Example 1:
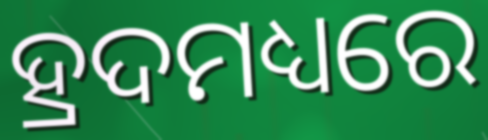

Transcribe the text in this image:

ହ୍ରଦମଧ୍ୟରେ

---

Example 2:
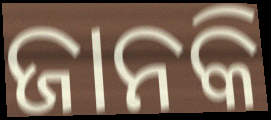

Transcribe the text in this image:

ଜାନକି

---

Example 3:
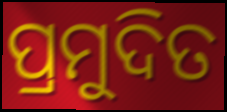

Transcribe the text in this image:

ପ୍ରମୁଦିତ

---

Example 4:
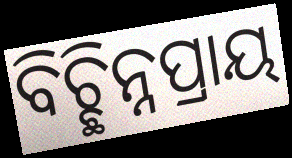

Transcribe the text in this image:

ବିଚ୍ଛିନ୍ନପ୍ରାୟ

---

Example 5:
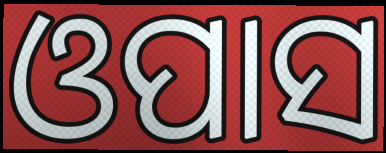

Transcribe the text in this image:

ଓପାସ